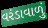
વરંડાવાળું